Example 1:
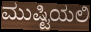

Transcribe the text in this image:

ಮುಷ್ಟಿಯಲಿ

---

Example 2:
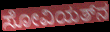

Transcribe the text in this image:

ಸೋವಿಯತ್‌ನ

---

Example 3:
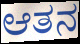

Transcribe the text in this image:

ಆತನ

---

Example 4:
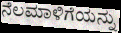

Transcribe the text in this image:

ನೆಲಮಾಳಿಗೆಯನ್ನು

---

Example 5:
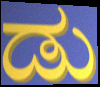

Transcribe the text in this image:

ಡು